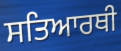
ਸਤਿਆਰਥੀ